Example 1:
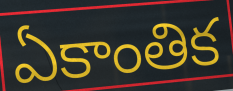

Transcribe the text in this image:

ఏకాంతిక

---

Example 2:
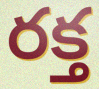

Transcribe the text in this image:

రక్త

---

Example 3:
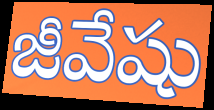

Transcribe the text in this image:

జీవేషు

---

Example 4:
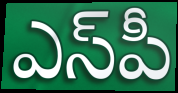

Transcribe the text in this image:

ఎస్‌పీ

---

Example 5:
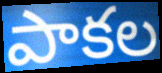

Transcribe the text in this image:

పాకల